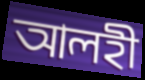
আলহী